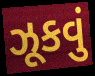
ઝૂકવું